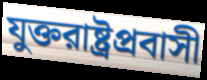
যুক্তরাষ্ট্রপ্রবাসী